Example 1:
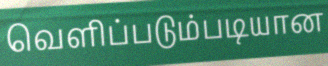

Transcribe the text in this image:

வெளிப்படும்படியான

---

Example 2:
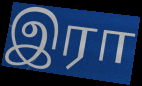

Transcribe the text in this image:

இரா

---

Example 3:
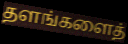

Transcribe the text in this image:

தளங்களைத்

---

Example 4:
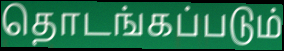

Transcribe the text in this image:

தொடங்கப்படும்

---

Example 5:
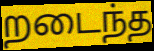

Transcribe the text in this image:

றடைந்த